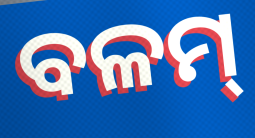
ବଳମ୍